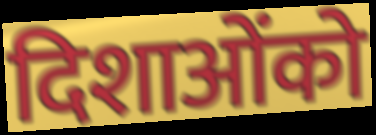
दिशाओंको